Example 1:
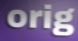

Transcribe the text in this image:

orig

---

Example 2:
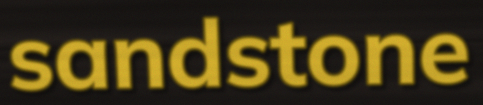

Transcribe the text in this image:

sandstone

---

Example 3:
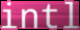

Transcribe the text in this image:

intl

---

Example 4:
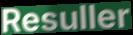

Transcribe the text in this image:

Resuller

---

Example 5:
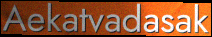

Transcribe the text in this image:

Aekatvadasak